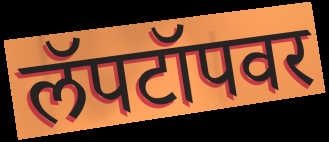
लॅपटॉपवर